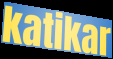
katikar